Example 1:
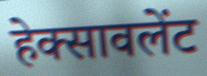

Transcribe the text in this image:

हेक्सावलेंट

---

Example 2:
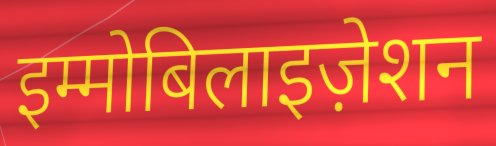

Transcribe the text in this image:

इम्मोबिलाइज़ेशन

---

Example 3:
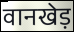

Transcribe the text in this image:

वानखेड़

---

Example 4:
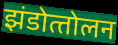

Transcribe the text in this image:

झंडोत्‍तोलन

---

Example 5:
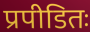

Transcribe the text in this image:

प्रपीडितः